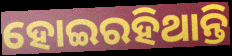
ହୋଇରହିଥାନ୍ତି